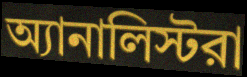
অ্যানালিস্টরা